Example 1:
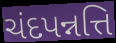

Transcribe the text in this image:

ચંદપન્નત્તિ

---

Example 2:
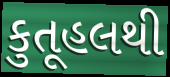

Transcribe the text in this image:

કુતૂહલથી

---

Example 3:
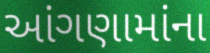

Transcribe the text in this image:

આંગણામાંના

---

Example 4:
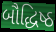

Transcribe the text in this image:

બૌદ્ધિષ્ઠ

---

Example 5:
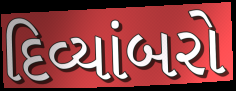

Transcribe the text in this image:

દિવ્યાંબરો